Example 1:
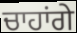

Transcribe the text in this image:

ਚਾਹਾਂਗੇ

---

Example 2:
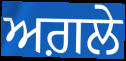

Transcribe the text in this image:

ਅਗ਼ਲੇ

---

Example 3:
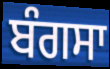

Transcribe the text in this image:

ਬੰਗਸਾ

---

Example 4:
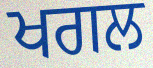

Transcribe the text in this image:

ਖਗਲ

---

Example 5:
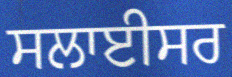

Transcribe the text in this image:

ਸਲਾਈਸਰ